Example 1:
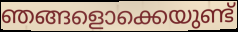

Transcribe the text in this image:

ഞങ്ങളൊക്കെയുണ്ട്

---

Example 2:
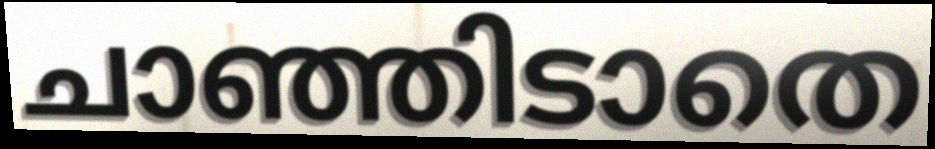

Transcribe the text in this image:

ചാഞ്ഞിടാതെ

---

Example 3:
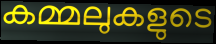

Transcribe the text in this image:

കമ്മലുകളുടെ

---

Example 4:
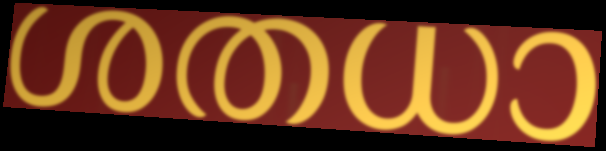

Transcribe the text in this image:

ശതധാ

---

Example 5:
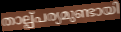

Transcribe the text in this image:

താല്പ്പര്യമുണ്ടായി